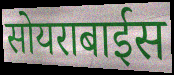
सोयराबाईस